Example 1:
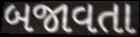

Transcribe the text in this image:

બજાવતા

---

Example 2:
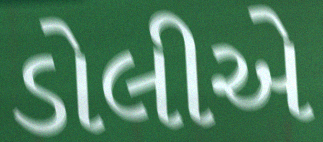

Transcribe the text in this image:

ડોલીએ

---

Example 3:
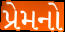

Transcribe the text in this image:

પ્રેમનો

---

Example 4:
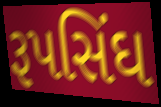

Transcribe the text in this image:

રૂપસિંઘ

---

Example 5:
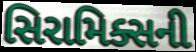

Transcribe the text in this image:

સિરામિક્સની